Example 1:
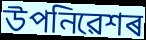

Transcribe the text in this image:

উপনিৱেশৰ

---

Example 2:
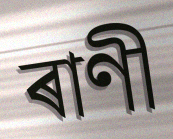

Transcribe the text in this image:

ৰাণী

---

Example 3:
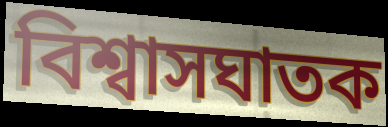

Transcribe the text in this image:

বিশ্বাসঘাতক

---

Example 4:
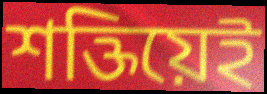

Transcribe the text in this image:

শক্তিয়েই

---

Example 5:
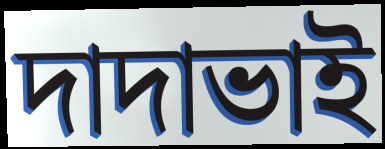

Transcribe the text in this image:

দাদাভাই